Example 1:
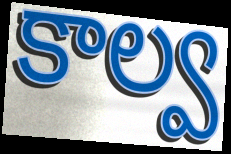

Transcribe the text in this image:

కాల్వ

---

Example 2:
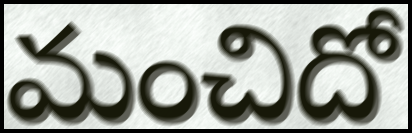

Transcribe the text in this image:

మంచిదో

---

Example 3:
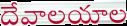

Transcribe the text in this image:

దేవాలయాల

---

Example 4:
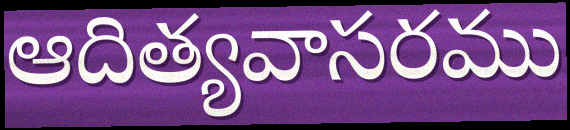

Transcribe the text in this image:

ఆదిత్యవాసరము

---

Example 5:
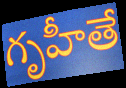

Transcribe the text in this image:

గృహీతే